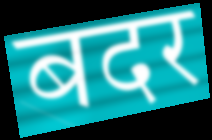
बदर